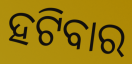
ହଟିବାର